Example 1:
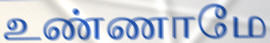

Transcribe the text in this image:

உண்ணாமே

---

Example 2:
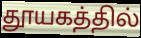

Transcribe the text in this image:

தூயகத்தில்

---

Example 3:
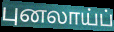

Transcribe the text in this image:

புனலாய்ப்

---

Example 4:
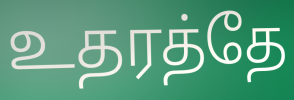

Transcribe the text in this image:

உதரத்தே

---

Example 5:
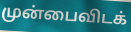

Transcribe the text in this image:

முன்பைவிடக்